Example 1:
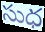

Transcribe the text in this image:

సుధ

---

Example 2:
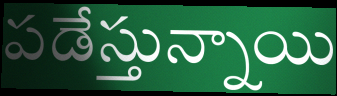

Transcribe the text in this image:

పడేస్తున్నాయి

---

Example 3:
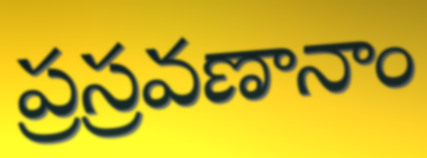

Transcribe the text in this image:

ప్రస్రవణానాం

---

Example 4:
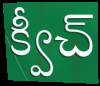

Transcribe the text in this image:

క్వీచ్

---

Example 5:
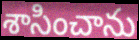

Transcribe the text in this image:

శాసించాను